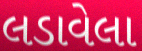
લડાવેલા